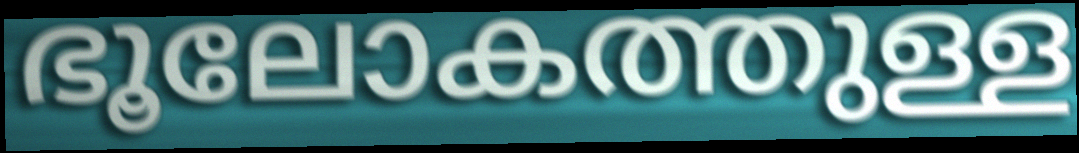
ഭൂലോകത്തുള്ള